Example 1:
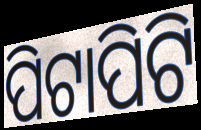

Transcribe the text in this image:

ପିଟାପିଟି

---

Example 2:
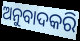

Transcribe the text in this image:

ଅନୁବାଦକରି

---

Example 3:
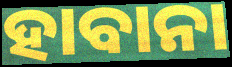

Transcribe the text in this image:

ହାବାନା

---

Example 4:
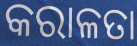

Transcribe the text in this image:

କରାଳତା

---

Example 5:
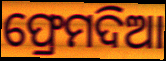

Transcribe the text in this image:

ଫ୍ରେମଦିଆ